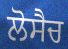
ਲੋਸੈਚ